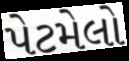
પેટમેલો